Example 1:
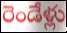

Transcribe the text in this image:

రెండేళ్లు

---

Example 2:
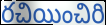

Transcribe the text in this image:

రచియించిరి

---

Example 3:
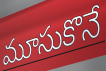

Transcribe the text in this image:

మూసుకొనే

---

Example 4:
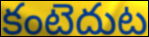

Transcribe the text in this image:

కంటెదుట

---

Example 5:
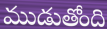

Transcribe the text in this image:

ముడుతోంది